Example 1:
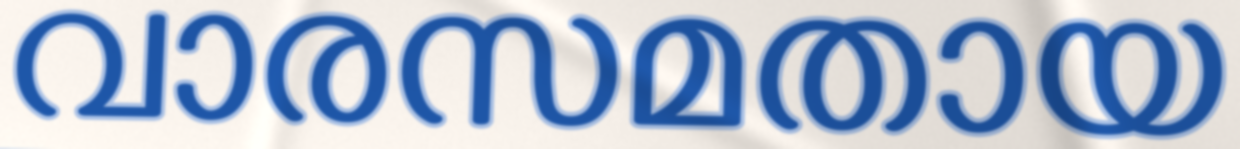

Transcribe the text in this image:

വാരസമതായ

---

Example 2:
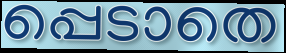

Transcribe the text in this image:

പ്പെടാതെ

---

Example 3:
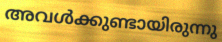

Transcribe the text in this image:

അവൾക്കുണ്ടായിരുന്നു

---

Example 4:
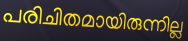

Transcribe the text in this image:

പരിചിതമായിരുന്നില്ല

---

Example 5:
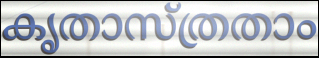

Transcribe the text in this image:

കൃതാസ്ത്രതാം